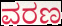
ವರಣ